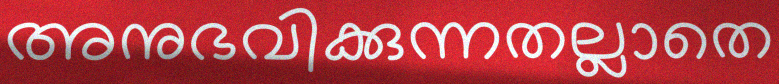
അനുഭവിക്കുന്നതല്ലാതെ